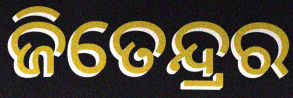
ଜିତେନ୍ଦ୍ରର